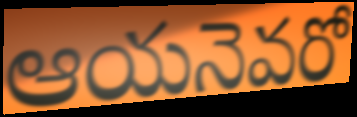
ఆయనెవరో